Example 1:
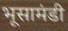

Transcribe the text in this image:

भूसामंडी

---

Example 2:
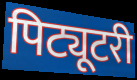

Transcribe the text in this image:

पिट्यूटरी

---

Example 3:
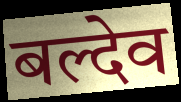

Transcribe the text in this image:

बल्देव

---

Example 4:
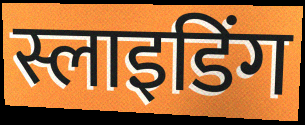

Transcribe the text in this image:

स्लाइडिंग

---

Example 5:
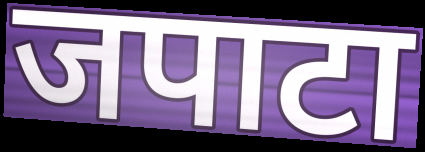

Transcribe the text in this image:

जपाटा